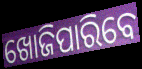
ଖୋଜିପାରିବେ